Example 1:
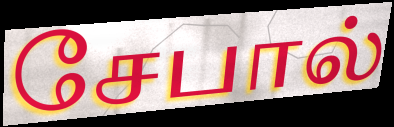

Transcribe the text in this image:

சேபால்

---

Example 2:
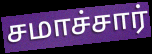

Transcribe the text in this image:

சமாச்சார்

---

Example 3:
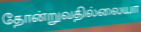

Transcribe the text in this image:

தோன்றுவதில்லையா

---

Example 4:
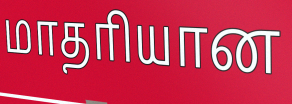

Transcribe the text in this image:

மாதரியான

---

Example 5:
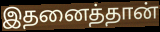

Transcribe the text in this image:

இதனைத்தான்